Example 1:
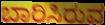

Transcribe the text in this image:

ಬಾರಿಸಿರುವ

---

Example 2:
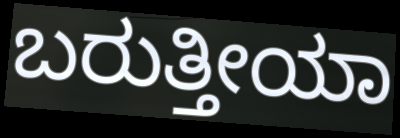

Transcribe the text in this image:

ಬರುತ್ತೀಯಾ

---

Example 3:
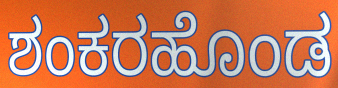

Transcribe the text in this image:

ಶಂಕರಹೊಂಡ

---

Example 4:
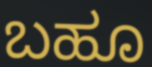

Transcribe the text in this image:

ಬಹೂ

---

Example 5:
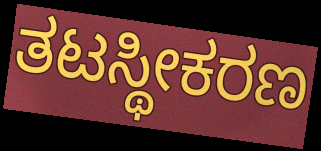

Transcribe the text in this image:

ತಟಸ್ಥೀಕರಣ